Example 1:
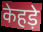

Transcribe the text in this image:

केहड़े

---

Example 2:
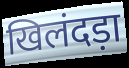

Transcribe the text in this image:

खिलंदड़ा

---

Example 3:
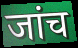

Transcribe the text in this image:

जांच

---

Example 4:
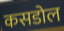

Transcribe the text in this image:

कसडोल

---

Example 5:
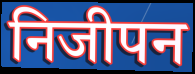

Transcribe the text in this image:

निजीपन